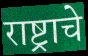
राष्ट्राचे